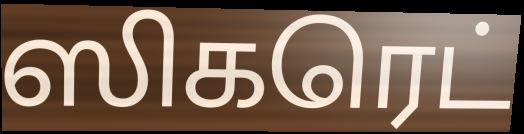
ஸிகரெட்